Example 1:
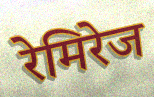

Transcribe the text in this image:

रेमिरेज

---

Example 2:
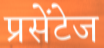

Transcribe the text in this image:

प्रसेंटेज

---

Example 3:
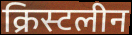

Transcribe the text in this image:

क्रिस्टलीन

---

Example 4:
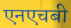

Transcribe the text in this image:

एनएचबी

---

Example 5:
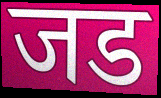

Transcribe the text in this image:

जड